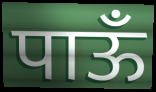
पाऊँ